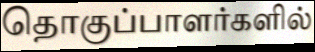
தொகுப்பாளர்களில்